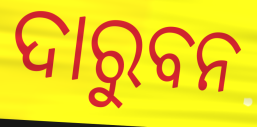
ଦାରୁବନ